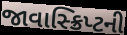
જાવાસ્ક્રિપ્ટની